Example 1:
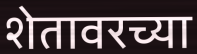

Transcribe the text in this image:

शेतावरच्या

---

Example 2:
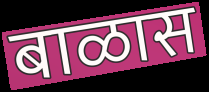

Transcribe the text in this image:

बाळास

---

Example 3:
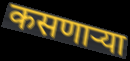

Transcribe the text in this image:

कसणाऱ्या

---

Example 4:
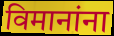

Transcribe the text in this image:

विमानांना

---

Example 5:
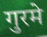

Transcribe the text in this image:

गुरमे